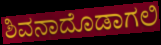
ಶಿವನಾದೊಡಾಗಲಿ